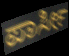
ಪಾರ್ಸೀ